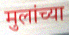
मुलांच्या